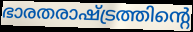
ഭാരതരാഷ്ട്രത്തിന്റെ